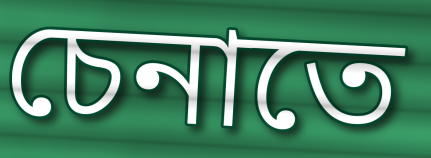
চেনাতে